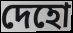
দেহো